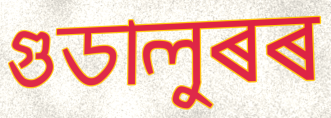
গুডালুৰৰ